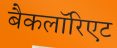
बैकलॉरिएट